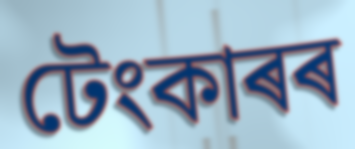
টেংকাৰৰ